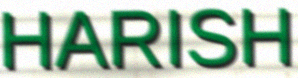
HARISH